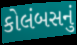
કોલંબસનું